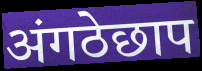
अंगठेछाप